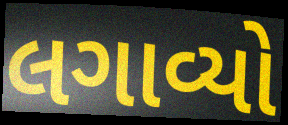
લગાવ્યો